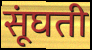
सूंघती